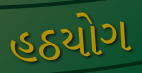
હઠયોગ